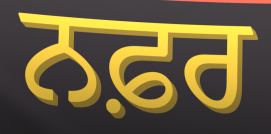
ਨਫ਼ਰ